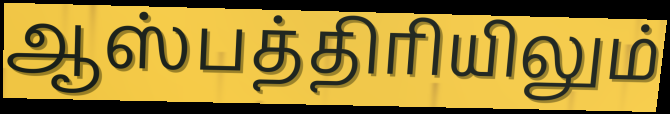
ஆஸ்பத்திரியிலும்